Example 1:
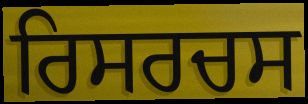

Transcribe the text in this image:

ਰਿਸਰਚਸ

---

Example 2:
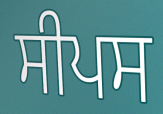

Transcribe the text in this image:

ਸੀਪਸ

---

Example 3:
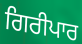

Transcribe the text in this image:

ਗਿਰੀਪਾਰ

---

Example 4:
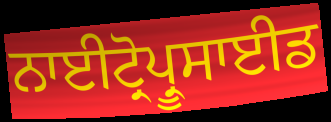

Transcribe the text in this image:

ਨਾਈਟ੍ਰੋਪ੍ਰੂਸਾਈਡ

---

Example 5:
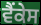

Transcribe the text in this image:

ਵੈਂਕੇਸ